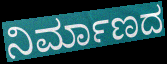
ನಿರ್ಮಾಣದ